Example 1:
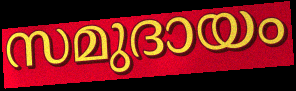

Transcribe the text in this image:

സമുദായം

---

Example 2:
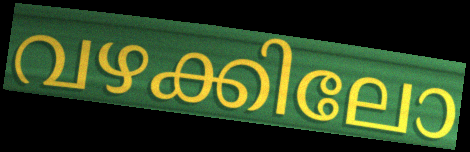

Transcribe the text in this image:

വഴക്കിലോ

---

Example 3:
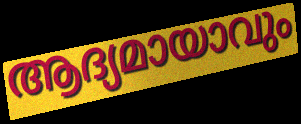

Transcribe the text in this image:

ആദ്യമായാവും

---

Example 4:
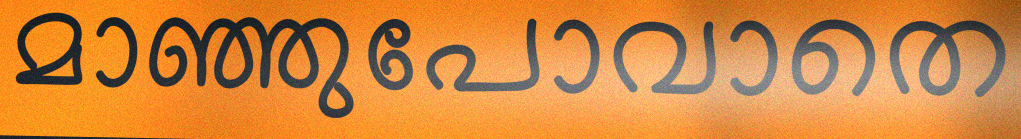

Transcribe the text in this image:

മാഞ്ഞുപോവാതെ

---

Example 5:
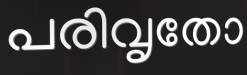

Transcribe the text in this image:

പരിവൃതോ